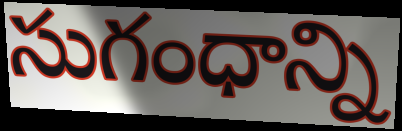
సుగంధాన్ని